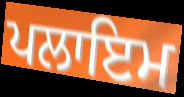
ਪਲਾਇਮ